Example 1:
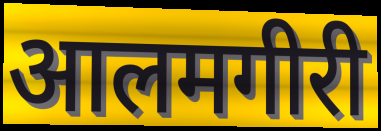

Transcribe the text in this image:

आलमगीरी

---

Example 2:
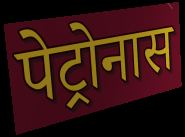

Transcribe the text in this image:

पेट्रोनास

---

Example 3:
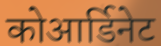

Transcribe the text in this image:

कोआर्डिनेट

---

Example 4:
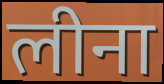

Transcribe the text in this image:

लीना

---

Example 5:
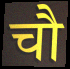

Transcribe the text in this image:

चौ